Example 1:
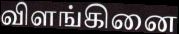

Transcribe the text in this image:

விளங்கினை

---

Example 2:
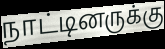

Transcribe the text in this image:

நாட்டினருக்கு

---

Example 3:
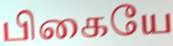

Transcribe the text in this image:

பிகையே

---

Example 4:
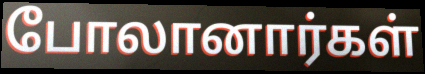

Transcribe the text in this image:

போலானார்கள்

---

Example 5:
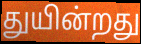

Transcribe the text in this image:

துயின்றது